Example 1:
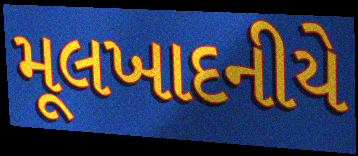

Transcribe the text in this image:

મૂલખાદનીયે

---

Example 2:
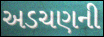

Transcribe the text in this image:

અડચણની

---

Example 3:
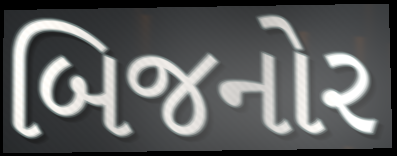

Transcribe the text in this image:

બિજનોર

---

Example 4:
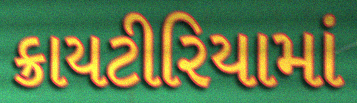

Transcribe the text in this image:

ક્રાયટીરિયામાં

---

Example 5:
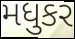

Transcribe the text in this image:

મધુકર